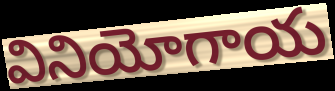
వినియోగాయ